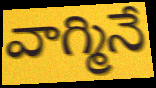
వాగ్మినే